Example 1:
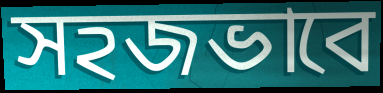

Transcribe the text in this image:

সহজভাবে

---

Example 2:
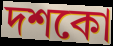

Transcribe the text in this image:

দশকো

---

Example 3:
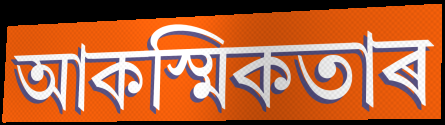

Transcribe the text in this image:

আকস্মিকতাৰ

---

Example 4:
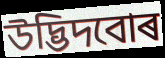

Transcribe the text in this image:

উদ্ভিদবোৰ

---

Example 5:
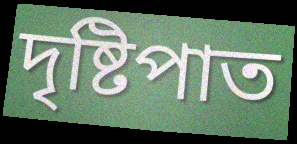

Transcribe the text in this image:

দৃষ্টিপাত